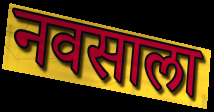
नवसाला